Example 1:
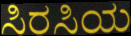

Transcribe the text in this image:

ಸಿರಸಿಯ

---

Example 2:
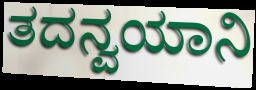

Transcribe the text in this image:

ತದನ್ವಯಾನಿ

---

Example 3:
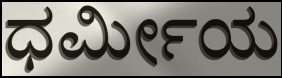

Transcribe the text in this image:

ಧರ್ಮೀಯ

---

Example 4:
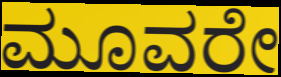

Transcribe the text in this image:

ಮೂವರೇ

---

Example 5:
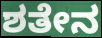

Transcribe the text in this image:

ಶತೇನ